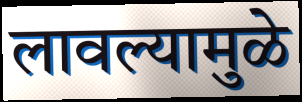
लावल्यामुळे